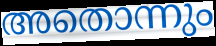
അതൊന്നും